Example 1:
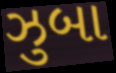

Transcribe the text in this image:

ઝુબા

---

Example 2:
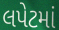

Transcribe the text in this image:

લપેટમાં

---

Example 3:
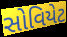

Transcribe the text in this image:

સોવિયેટ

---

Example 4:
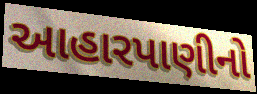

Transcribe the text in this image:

આહારપાણીનો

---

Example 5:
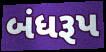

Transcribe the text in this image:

બંધરૂપ